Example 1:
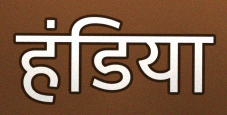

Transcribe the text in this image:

हंडिया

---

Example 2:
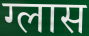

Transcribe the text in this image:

ग्लास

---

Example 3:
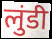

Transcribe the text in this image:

लुंडी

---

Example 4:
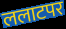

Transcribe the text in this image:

ललाटपर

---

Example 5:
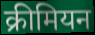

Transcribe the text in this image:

क्रीमियन